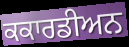
ਕਕਾਰਡੀਅਨ